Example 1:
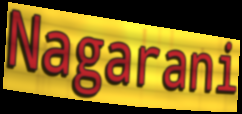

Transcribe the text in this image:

Nagarani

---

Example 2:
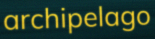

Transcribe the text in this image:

archipelago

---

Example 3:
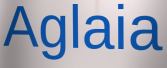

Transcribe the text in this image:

Aglaia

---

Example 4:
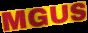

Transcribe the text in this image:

MGUS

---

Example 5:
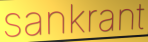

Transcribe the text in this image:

sankrant